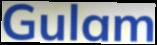
Gulam